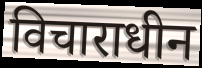
विचाराधीन